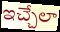
ఇచ్చేలా